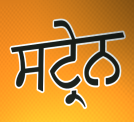
ਸਟ੍ਰੇਨ